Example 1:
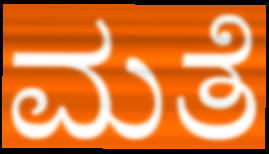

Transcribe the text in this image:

ಮತೆ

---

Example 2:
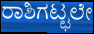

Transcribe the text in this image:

ರಾಶಿಗಟ್ಟಲೇ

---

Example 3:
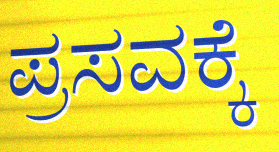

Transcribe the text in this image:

ಪ್ರಸವಕ್ಕೆ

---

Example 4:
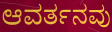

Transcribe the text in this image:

ಆವರ್ತನವು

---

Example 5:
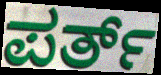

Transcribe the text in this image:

ಪರ್ತ್